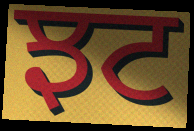
ਝਟ